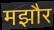
मझौर